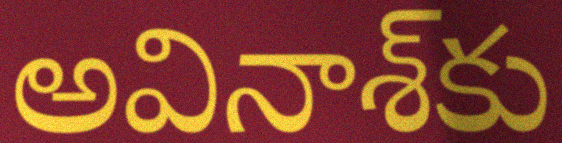
అవినాశ్‌కు